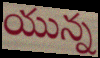
యున్న